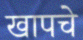
खापचे